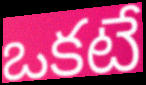
ఒకటే